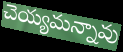
చెయ్యమన్నావు